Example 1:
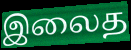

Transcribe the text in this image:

இலைத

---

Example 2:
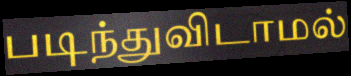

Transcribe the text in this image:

படிந்துவிடாமல்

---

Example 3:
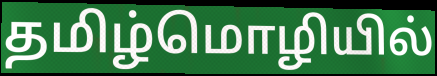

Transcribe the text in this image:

தமிழ்மொழியில்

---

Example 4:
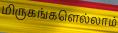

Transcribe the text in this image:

மிருகங்களெல்லாம்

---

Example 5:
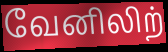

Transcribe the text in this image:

வேனிலிற்